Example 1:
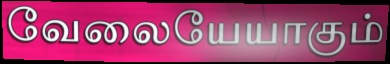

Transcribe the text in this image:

வேலையேயாகும்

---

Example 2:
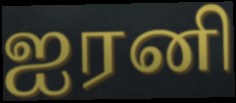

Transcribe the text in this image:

ஐரனி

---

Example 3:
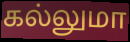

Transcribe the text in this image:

கல்லுமா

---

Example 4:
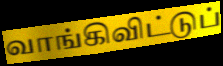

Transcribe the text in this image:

வாங்கிவிட்டுப்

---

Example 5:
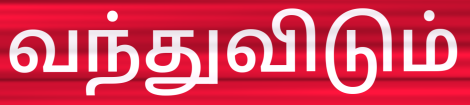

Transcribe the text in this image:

வந்துவிடும்